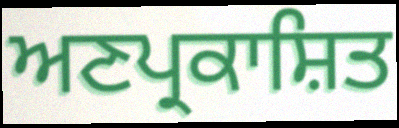
ਅਣਪ੍ਰਕਾਸ਼ਿਤ